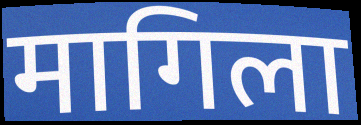
मागिला